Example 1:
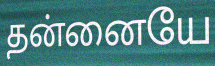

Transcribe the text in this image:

தன்னையே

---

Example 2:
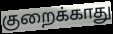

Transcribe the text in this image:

குறைக்காது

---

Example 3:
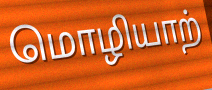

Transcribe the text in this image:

மொழியாற்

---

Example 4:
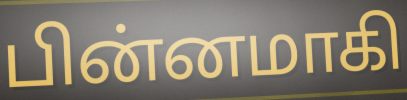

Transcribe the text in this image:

பின்னமாகி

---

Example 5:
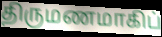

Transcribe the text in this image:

திருமணமாகிப்